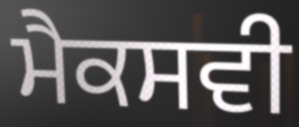
ਮੈਕਸਵੀ